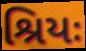
શ્રિયઃ